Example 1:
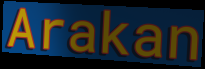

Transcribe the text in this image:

Arakan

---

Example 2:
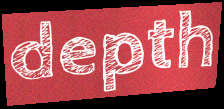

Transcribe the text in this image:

depth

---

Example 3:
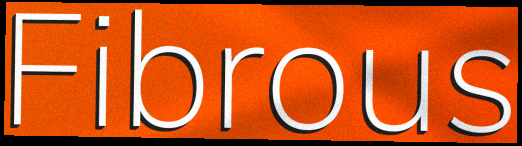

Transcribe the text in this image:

Fibrous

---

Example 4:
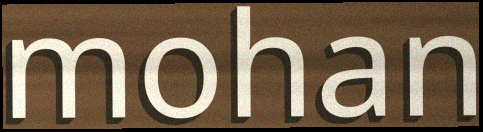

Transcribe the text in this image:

mohan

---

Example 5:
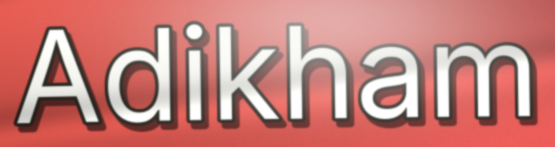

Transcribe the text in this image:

Adikham